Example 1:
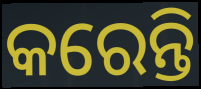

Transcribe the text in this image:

କରେନ୍ତି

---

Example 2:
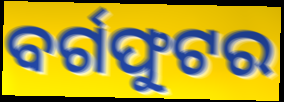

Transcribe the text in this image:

ବର୍ଗଫୁଟର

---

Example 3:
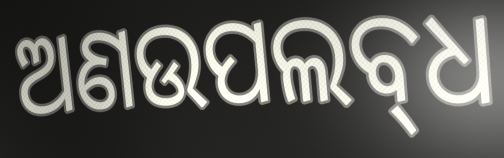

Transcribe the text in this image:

ଅଣଉପଲବ୍‌ଧ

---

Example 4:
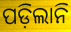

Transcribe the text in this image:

ପଡ଼ିଲାନି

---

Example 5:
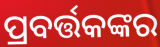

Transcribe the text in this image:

ପ୍ରବର୍ତ୍ତକଙ୍କର